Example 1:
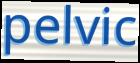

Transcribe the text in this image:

pelvic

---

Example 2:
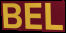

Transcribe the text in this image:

BEL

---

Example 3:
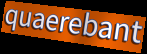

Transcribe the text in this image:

quaerebant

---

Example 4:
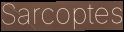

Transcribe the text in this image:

Sarcoptes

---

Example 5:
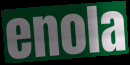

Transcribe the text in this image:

enola